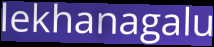
lekhanagalu